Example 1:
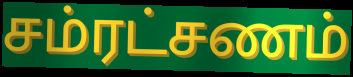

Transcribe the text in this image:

சம்ரட்சணம்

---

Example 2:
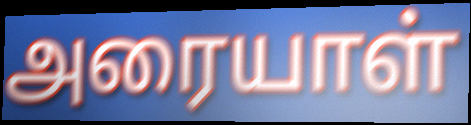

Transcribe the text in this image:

அரையாள்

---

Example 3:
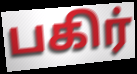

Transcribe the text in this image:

பகிர்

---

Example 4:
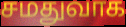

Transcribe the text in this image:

சமதுவாக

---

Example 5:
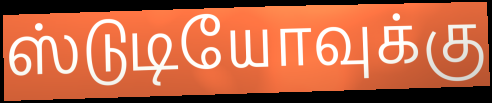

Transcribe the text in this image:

ஸ்டுடியோவுக்கு